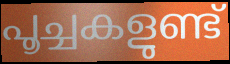
പൂച്ചകളുണ്ട്